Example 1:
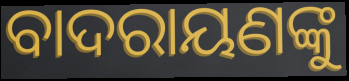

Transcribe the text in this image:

ବାଦରାୟଣଙ୍କୁ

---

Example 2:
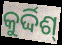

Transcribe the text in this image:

କୁର୍ଦ୍ଦିଶ୍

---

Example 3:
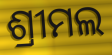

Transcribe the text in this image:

ଶ୍ରୀମଲ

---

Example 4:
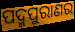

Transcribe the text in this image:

ପଦ୍ମପୁରାଣର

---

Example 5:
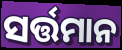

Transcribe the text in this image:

ସର୍ତ୍ତମାନ